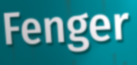
Fenger